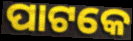
ପାଟକେ